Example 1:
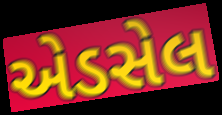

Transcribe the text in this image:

એડસેલ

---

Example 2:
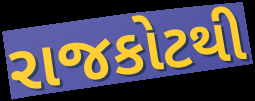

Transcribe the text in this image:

રાજકોટથી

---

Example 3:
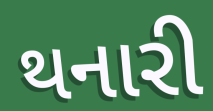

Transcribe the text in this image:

થનારી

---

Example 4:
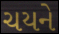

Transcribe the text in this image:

ચયને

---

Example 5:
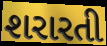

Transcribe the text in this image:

શરારતી